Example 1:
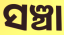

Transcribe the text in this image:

ସଞ୍ଚା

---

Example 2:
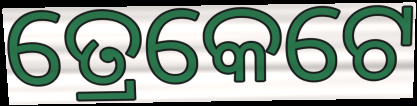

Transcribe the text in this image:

ତ୍ରେକେଟେ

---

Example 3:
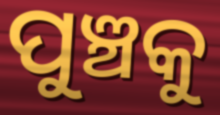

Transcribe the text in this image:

ପୁଞ୍ଚକୁ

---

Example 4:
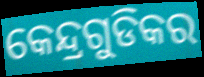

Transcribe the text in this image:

କେନ୍ଦ୍ରଗୁଡିକର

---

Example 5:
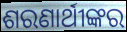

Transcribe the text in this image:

ଶରଣାର୍ଥୀଙ୍କର